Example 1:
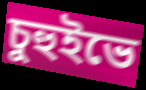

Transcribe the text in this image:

চুহুইভে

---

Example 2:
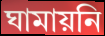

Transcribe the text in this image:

ঘামায়নি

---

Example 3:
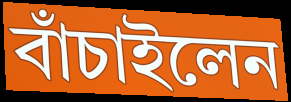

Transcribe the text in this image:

বাঁচাইলেন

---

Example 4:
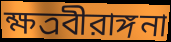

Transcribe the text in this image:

ক্ষত্রবীরাঙ্গনা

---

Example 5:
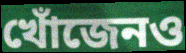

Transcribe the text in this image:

খোঁজেনও